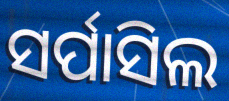
ସର୍ପାସିଲ